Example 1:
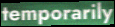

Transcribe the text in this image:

temporarily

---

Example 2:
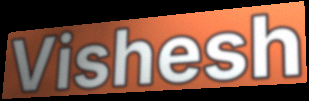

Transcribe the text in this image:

Vishesh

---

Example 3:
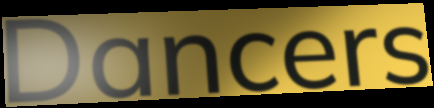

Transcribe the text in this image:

Dancers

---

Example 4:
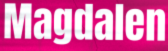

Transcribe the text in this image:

Magdalen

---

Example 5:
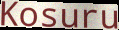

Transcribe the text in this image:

Kosuru